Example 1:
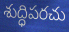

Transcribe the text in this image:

శుద్ధిపరచు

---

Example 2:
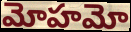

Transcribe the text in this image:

మోహమో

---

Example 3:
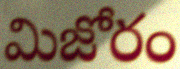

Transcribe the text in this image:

మిజోరం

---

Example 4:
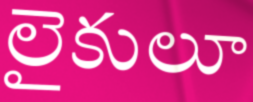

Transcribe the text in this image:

లైకులూ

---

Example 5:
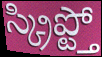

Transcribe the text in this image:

స్క్రిప్ట్తో